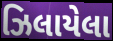
ઝિલાયેલા